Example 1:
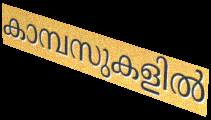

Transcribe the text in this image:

കാമ്പസുകളിൽ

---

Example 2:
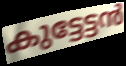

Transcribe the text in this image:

കുട്ടേട്ടൻ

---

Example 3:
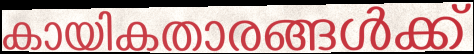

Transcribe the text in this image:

കായികതാരങ്ങൾക്ക്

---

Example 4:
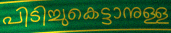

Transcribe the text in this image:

പിടിച്ചുകെട്ടാനുള്ള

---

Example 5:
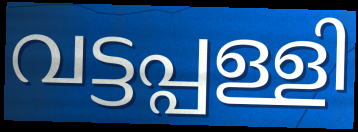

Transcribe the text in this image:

വട്ടപ്പള്ളി